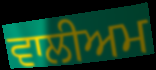
ਵਾਲੀਅਮ